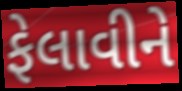
ફેલાવીને